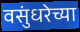
वसुंधरेच्या